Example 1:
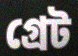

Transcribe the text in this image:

গ্রেট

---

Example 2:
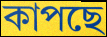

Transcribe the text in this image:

কাপছে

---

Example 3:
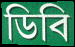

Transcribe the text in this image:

ডিবি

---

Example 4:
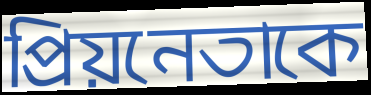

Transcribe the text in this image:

প্রিয়নেতাকে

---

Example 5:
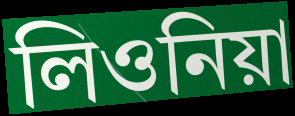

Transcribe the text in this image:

লিওনিয়া